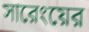
সারেংয়ের